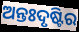
ଅନ୍ତଃଦୃଷ୍ଟିର